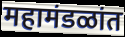
महामंडळांत